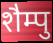
शैम्पु